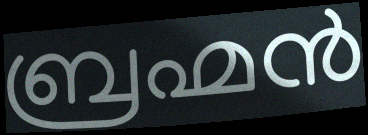
ബ്രഹ്മൻ